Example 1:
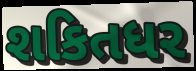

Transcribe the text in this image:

શકિતધર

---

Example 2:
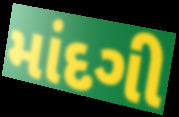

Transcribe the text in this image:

માંદગી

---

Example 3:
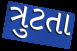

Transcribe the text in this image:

ત્રુટતા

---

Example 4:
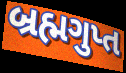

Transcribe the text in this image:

બ્રહ્મગુપ્ત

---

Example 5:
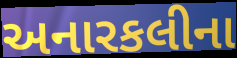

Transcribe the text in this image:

અનારકલીના